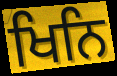
ਖਿਨਿ